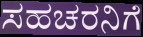
ಸಹಚರನಿಗೆ